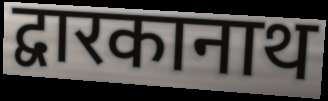
द्वारकानाथ